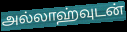
அல்லாஹ்வுடன்